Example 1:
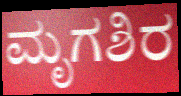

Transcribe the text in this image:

ಮೃಗಶಿರ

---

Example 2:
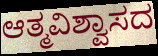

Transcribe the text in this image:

ಆತ್ಮವಿಶ್ವಾಸದ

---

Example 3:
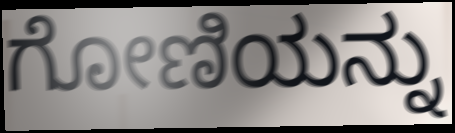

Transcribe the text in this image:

ಗೋಣಿಯನ್ನು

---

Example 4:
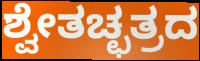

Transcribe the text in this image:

ಶ್ವೇತಚ್ಛತ್ರದ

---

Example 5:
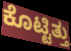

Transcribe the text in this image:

ಕೊಟ್ಟಿತ್ತು